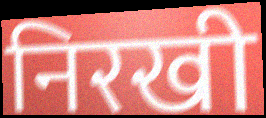
निरखी